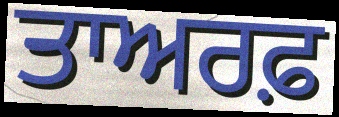
ਤਾਅਰਫ਼